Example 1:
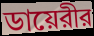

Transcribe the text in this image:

ডায়েরীর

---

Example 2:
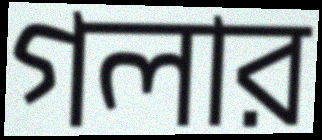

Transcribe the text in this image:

গলার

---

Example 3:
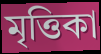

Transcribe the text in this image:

মৃত্তিকা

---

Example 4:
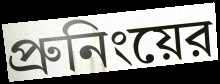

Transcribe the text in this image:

প্রুনিংয়ের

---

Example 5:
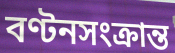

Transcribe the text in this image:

বণ্টনসংক্রান্ত